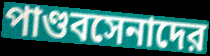
পাণ্ডবসেনাদের